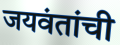
जयवंतांची